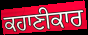
ਕਹਾਣੀਕਾਰ